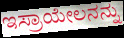
ಇಸ್ರಾಯೇಲನನ್ನು